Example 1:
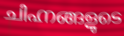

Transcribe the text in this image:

ചിഹ്നങ്ങളുടെ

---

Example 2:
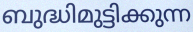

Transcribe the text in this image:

ബുദ്ധിമുട്ടിക്കുന്ന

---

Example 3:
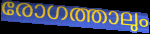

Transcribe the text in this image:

രോഗത്താലും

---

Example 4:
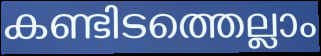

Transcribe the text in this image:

കണ്ടിടത്തെല്ലാം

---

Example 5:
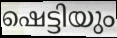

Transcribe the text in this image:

ഷെട്ടിയും